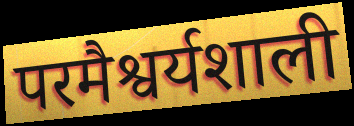
परमैश्वर्यशाली